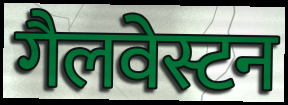
गैलवेस्टन